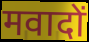
मवादों